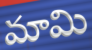
మామి